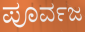
ಪೂರ್ವಜ